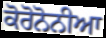
ਕੋਰੋਨੋਨੀਆ